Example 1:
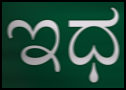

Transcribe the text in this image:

ಇಧ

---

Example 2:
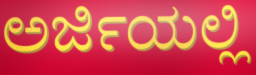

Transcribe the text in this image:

ಅರ್ಜಿಯಲ್ಲಿ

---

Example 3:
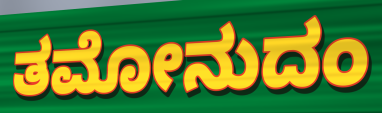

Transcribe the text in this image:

ತಮೋನುದಂ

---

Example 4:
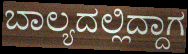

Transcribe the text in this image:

ಬಾಲ್ಯದಲ್ಲಿದ್ದಾಗ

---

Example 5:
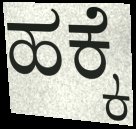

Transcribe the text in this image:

ಹಕ್ಕೆ